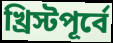
খ্রিস্টপূর্বে